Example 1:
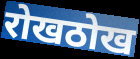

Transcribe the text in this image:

रोखठोख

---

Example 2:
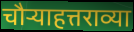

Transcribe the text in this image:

चौऱ्याहत्तराव्या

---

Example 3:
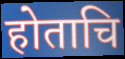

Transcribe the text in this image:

होताचि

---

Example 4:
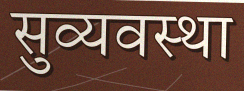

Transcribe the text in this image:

सुव्यवस्था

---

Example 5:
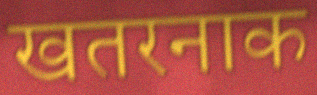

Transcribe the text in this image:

खतरनाक